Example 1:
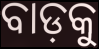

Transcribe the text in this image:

ବାଡ଼କୁ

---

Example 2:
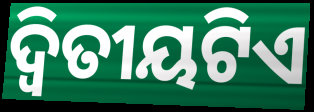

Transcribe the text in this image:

ଦ୍ୱିତୀୟଟିଏ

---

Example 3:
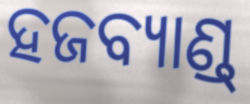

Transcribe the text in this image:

ହଜବ୍ୟାଣ୍ଡ୍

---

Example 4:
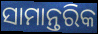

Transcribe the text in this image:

ସାମାନ୍ତରିକ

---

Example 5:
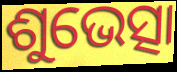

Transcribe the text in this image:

ଶୁଭେତ୍ସା